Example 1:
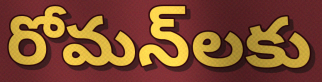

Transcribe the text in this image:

రోమన్‌లకు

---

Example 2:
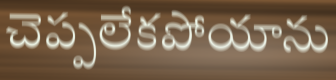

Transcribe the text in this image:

చెప్పలేకపోయాను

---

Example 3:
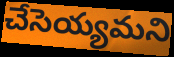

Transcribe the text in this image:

చేసెయ్యమని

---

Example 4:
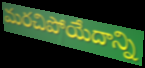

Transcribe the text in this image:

మరచిపోయేదాన్ని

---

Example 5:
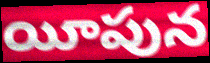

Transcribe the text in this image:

యీపున